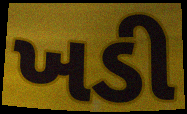
ખડી